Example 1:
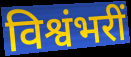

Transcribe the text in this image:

विश्वंभरीं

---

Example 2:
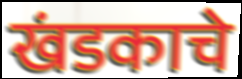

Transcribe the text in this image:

खंडकाचे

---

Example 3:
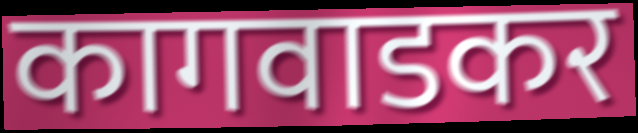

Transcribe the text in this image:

कागवाडकर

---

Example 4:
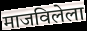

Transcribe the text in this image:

माजविलेला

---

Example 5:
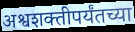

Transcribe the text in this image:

अश्वशक्तीपर्यंतच्या